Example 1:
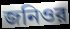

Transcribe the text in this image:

জনিওর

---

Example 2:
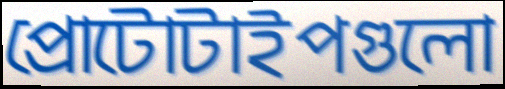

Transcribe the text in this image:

প্রোটোটাইপগুলো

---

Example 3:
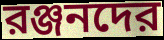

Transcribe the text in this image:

রঞ্জনদের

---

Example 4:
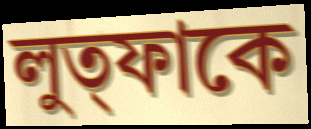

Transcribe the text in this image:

লুত্ফাকে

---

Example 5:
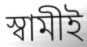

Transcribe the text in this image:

স্বামীই